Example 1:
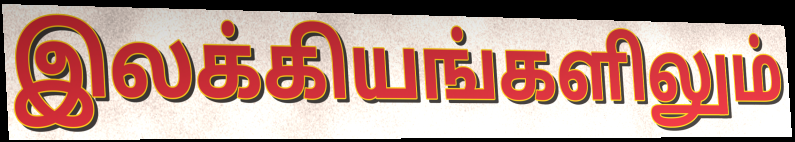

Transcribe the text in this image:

இலக்கியங்களிலும்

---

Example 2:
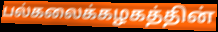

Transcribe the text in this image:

பல்கலைக்கழகத்தின்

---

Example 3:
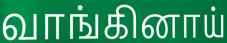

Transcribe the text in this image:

வாங்கினாய்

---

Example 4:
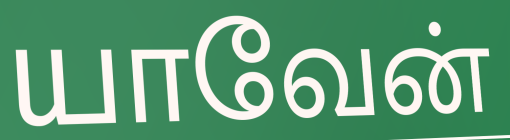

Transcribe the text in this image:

யாவேன்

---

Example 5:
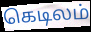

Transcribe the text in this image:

கெடிலம்